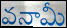
వనామీ